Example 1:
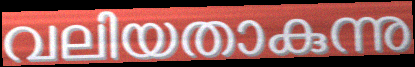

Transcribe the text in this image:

വലിയതാകുന്നു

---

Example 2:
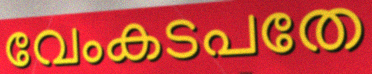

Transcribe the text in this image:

വേംകടപതേ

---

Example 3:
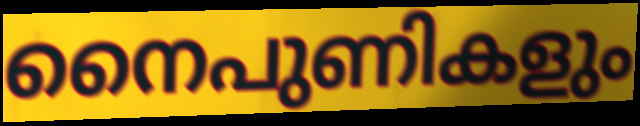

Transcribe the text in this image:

നൈപുണികളും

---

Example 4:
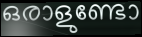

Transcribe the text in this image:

ഒരാളുണ്ടോ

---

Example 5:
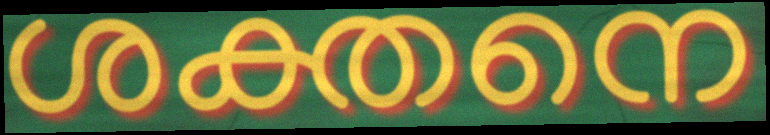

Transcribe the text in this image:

ശക്തനെ